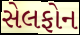
સેલફોન